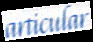
articular